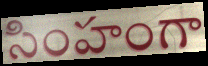
సింహంగా